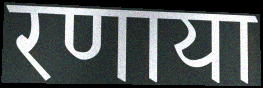
रणाया